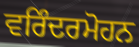
ਵਰਿੰਦਰਮੋਹਨ